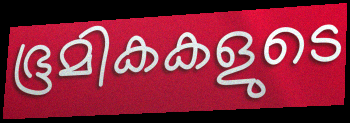
ഭൂമികകളുടെ